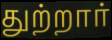
துற்றார்